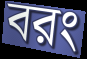
বরং